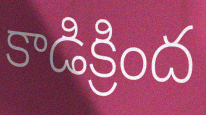
కాడిక్రింద